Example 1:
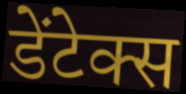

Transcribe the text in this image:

डेंटेक्स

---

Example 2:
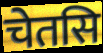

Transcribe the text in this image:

चेतसि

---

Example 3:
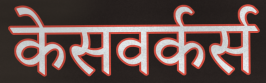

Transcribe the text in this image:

केसवर्कर्स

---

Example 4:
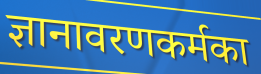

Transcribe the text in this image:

ज्ञानावरणकर्मका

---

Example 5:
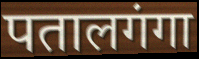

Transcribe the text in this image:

पतालगंगा